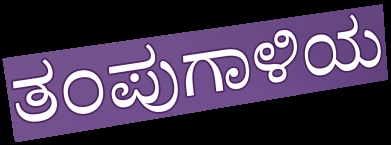
ತಂಪುಗಾಳಿಯ